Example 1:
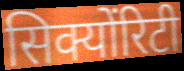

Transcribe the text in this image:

सिक्योंरिटी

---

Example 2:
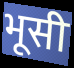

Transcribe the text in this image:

भूसी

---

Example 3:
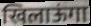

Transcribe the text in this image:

खिलाऊंगा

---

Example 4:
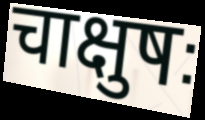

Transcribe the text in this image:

चाक्षुषः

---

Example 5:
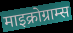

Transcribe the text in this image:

माइक्रोग्राम्स